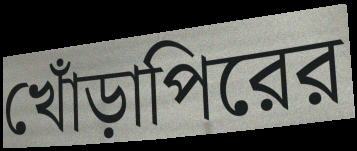
খোঁড়াপিরের